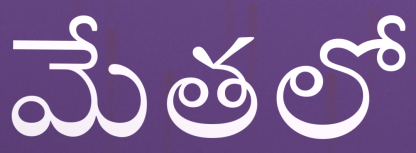
మేతలో